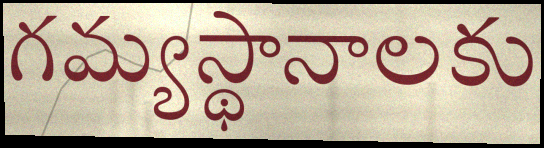
గమ్యస్థానాలకు